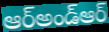
ఆర్అండ్ఆర్